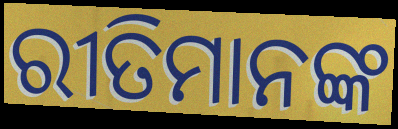
ରୀତିମାନଙ୍କ